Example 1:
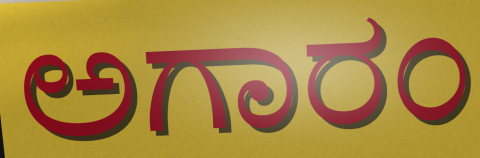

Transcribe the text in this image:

ಅಗಾರಂ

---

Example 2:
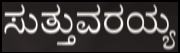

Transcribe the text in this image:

ಸುತ್ತುವರಯ್ಯ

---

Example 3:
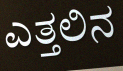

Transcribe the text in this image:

ಎತ್ತಲಿನ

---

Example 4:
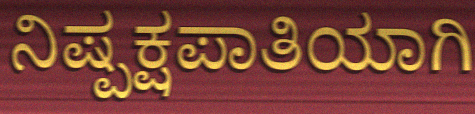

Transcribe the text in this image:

ನಿಷ್ಪಕ್ಷಪಾತಿಯಾಗಿ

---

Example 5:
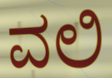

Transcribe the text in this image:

ವಲಿ